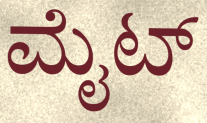
ಮೈಟ್